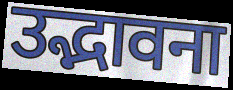
उद्भावना